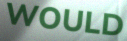
WOULD